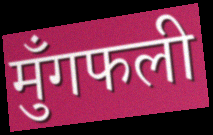
मुँगफली